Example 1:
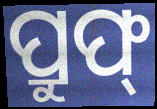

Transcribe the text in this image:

ପ୍ରୁଫ୍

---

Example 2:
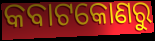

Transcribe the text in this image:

କବାଟକୋଣରୁ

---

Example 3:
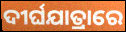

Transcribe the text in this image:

ଦୀର୍ଘଯାତ୍ରାରେ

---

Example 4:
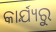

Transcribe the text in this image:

କାର୍ଯ୍ୟରୁ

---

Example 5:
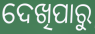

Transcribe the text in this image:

ଦେଖିପାରୁ